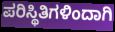
ಪರಿಸ್ಥಿತಿಗಳಿಂದಾಗಿ